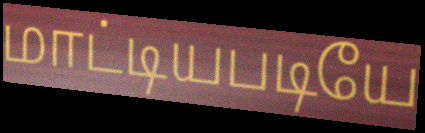
மாட்டியபடியே